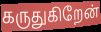
கருதுகிறேன்